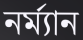
নর্ম্যান